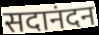
सदानंदन